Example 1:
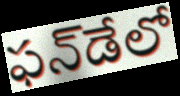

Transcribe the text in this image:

ఫన్‌డేలో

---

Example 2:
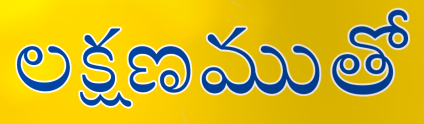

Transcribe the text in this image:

లక్షణముతో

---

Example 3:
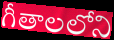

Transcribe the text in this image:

గీతాలలోని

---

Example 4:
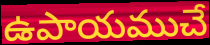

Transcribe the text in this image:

ఉపాయముచే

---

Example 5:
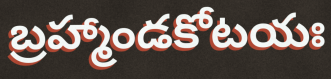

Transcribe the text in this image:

బ్రహ్మాండకోటయః